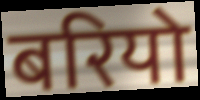
बरियो